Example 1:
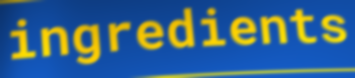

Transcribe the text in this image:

ingredients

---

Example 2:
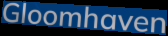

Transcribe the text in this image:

Gloomhaven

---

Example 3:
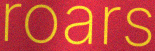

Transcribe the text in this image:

roars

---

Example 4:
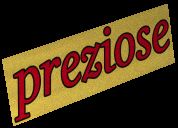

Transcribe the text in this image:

preziose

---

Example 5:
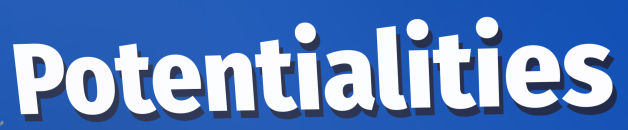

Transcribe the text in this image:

Potentialities